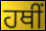
ਹਥੀਂ